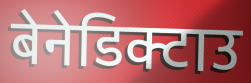
बेनेडिक्टाउ